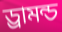
ড্রামন্ড